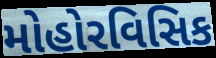
મોહોરવિસિક